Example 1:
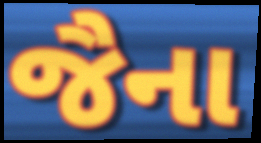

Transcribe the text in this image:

જૈના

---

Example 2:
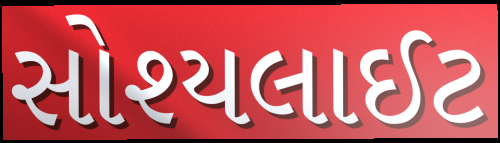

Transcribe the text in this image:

સોશ્યલાઈટ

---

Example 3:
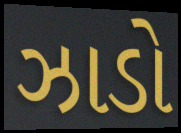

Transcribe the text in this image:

ઝાડો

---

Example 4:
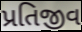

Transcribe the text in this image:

પ્રતિજીવ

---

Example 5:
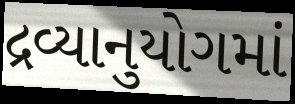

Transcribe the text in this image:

દ્રવ્યાનુયોગમાં